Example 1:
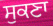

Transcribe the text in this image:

ਸੁਕਣਾ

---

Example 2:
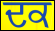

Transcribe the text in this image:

ਦਕ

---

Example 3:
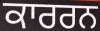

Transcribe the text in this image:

ਕਾਰਰਨ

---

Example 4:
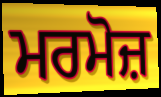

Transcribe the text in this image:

ਮਰਮੋਜ਼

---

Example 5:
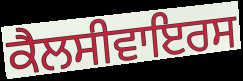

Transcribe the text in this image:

ਕੈਲਸੀਵਾਇਰਸ